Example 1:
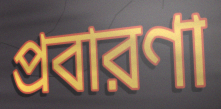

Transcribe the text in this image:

প্রবারণা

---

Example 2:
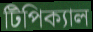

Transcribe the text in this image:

টিপিক্যাল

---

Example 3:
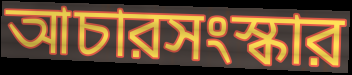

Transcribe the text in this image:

আচারসংস্কার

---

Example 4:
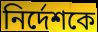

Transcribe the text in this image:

নির্দেশকে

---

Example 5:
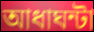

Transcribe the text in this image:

আধাঘন্টা